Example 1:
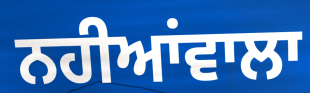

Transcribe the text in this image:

ਨਹੀਆਂਵਾਲਾ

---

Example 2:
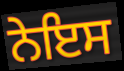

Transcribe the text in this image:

ਨੇਇਸ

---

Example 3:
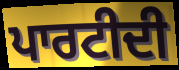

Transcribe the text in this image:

ਪਾਰਟੀਦੀ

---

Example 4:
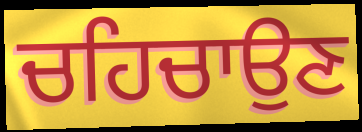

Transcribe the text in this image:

ਚਹਿਚਾਉਣ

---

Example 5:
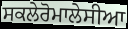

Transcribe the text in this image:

ਸਕਲੇਰੋਮਾਲੇਸੀਆ